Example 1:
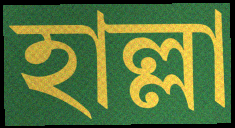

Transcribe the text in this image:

হাল্লা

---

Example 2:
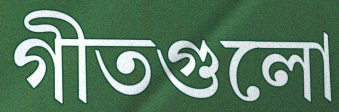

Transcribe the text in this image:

গীতগুলো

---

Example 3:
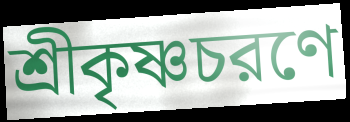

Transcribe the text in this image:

শ্রীকৃষ্ণচরণে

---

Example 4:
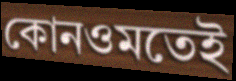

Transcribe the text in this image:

কোনওমতেই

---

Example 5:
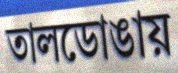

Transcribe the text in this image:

তালডোঙায়